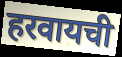
हरवायची